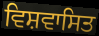
ਵਿਸ਼ਵਾਸਿਤ